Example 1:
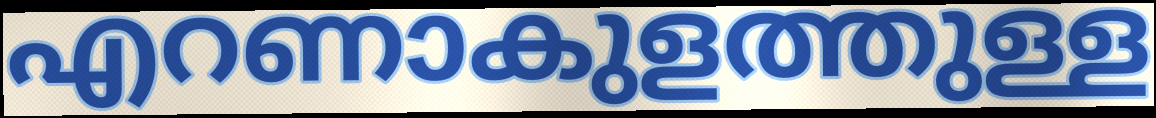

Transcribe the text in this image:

എറണാകുളത്തുള്ള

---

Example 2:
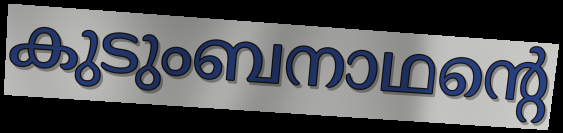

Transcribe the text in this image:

കുടുംബനാഥന്റെ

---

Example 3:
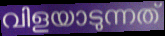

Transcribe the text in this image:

വിളയാടുന്നത്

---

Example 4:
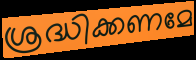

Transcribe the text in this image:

ശ്രദ്ധിക്കണമേ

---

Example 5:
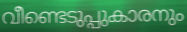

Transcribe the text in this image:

വീണ്ടെടുപ്പുകാരനും